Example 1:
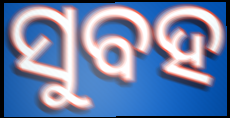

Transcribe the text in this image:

ସୁବହ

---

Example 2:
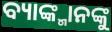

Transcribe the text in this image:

ବ୍ୟାଙ୍କ୍ମାନଙ୍କୁ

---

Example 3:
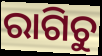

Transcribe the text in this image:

ରାଗିଚୁ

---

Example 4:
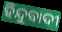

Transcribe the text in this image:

ହିନ୍ଦୁବାଦୀ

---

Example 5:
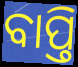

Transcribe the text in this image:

ବାପ୍ତି